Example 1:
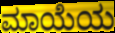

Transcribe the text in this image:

ಮಾಯೆಯ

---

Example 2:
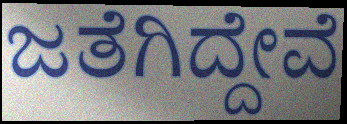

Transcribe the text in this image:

ಜತೆಗಿದ್ದೇವೆ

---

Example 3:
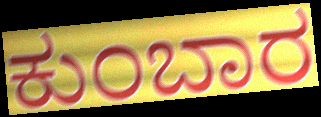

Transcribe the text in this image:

ಕುಂಬಾರ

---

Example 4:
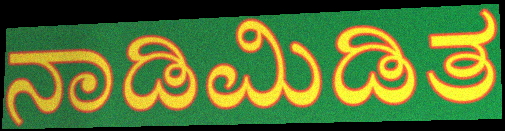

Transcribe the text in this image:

ನಾಡಿಮಿಡಿತ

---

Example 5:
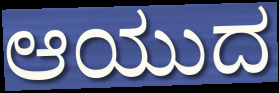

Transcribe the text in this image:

ಆಯುದ